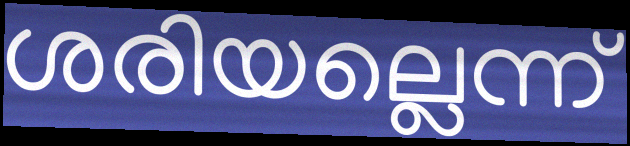
ശരിയല്ലെന്ന്